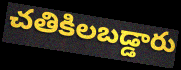
చతికిలబడ్డారు